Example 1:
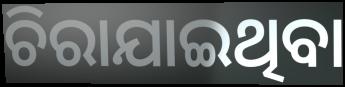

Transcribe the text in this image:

ଚିରାଯାଇଥିବା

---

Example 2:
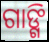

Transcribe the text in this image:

ଗାଙ୍ଗି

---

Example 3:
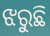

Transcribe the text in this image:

ଝରୁଛି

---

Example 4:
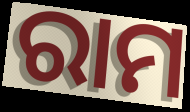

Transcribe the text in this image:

ରାମ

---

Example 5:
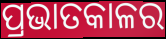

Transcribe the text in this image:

ପ୍ରଭାତକାଳର